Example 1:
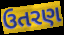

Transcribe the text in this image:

ઉતરણ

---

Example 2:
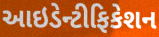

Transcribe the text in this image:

આઇડેન્ટીફિકેશન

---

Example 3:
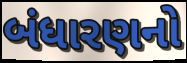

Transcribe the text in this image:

બંધારણનો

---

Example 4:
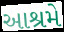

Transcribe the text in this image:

આશ્રમે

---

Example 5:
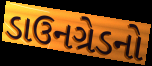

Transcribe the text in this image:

ડાઉનગ્રેડનો